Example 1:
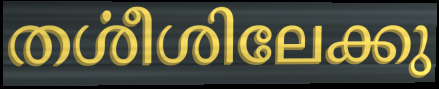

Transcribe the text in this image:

തൎശീശിലേക്കു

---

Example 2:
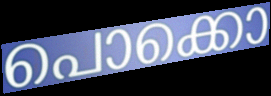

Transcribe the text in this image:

പൊക്കൊ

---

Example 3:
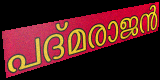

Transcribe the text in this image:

പദ്മരാജൻ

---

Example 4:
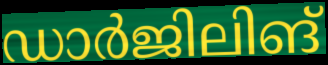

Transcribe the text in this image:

ഡാർജിലിങ്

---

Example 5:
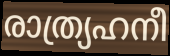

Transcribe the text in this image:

രാത്ര്യഹനീ